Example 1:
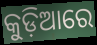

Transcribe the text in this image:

କୁଡ଼ିଆରେ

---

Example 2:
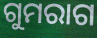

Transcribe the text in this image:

ଗୁମରାଗ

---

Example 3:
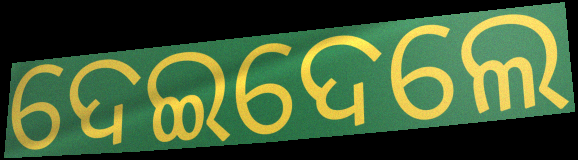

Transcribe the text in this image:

ଦେଇଦେଲେ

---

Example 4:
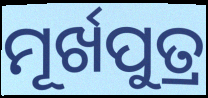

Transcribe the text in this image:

ମୂର୍ଖପୁତ୍ର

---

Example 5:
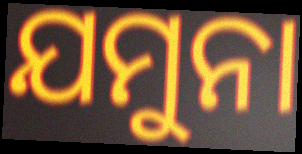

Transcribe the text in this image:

ଯମୁନା